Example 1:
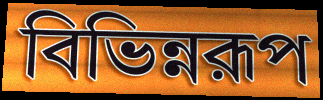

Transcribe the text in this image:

বিভিন্নরূপ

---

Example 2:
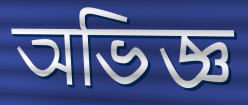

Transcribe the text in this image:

অভিজ্ঞ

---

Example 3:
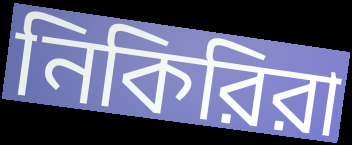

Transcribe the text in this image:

নিকিরিরা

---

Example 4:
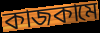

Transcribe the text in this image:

কাজকামে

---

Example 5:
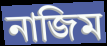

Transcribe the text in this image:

নাজিম